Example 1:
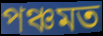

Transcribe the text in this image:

পঞ্চমত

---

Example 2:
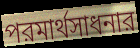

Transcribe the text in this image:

পরমার্থসাধনার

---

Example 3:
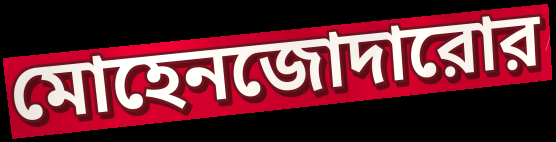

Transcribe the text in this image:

মোহেনজোদারোর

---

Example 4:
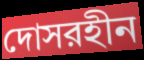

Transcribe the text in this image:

দোসরহীন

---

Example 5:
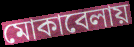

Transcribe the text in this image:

মোকাবেলায়